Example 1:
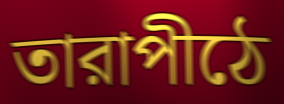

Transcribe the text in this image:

তারাপীঠে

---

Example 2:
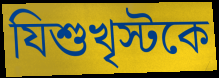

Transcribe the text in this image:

যিশুখৃস্টকে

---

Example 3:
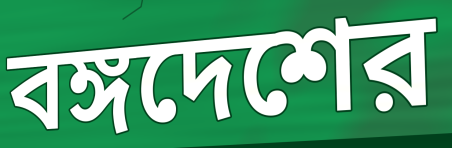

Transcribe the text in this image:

বঙ্গদেশের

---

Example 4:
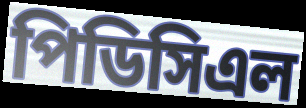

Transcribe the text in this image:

পিডিসিএল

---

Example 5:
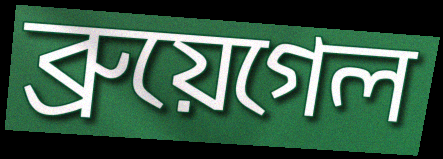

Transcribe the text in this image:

ব্রুয়েগেল